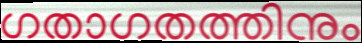
ഗതാഗതത്തിനും